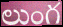
లుంగ